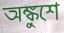
অঙ্কুশে